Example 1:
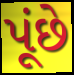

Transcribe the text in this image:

પૂંછે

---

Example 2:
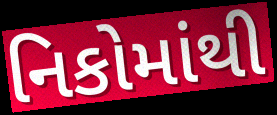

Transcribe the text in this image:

નિકોમાંથી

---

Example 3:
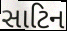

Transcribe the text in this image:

સાટિન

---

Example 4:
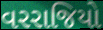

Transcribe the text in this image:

વરરાજિયો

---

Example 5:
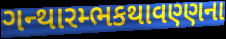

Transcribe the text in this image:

ગન્થારમ્ભકથાવણ્ણના